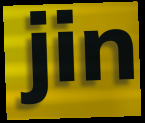
jin